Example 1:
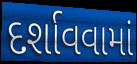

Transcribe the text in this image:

દર્શાવવામાં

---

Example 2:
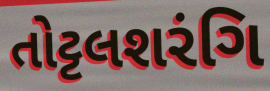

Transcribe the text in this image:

તોટ્ટલશરંગિ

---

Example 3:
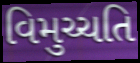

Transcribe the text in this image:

વિમુચ્ચતિ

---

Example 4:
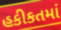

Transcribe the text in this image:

હકીકતમાં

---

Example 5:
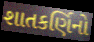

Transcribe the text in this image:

શાતકર્ણિનો